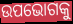
ଉପଭୋଗକୁ